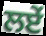
ਲਏਂ